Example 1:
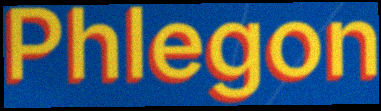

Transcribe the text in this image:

Phlegon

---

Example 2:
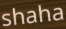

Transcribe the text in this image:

shaha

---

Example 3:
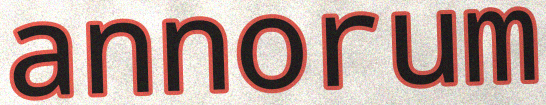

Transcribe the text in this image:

annorum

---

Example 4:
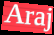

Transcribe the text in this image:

Araj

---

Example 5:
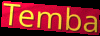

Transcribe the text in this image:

Temba